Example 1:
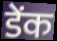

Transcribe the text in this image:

डेंक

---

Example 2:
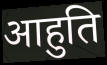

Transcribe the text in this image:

आहुति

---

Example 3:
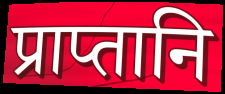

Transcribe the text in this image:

प्राप्तानि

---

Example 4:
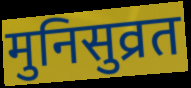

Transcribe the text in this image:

मुनिसुव्रत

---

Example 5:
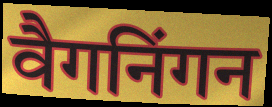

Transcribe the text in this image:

वैगनिंगन